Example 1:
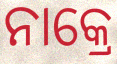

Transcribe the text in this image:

ନାକ୍ରେ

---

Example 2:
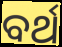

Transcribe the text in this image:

ବର୍ଥ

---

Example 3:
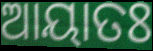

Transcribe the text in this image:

ଆୟାତଃ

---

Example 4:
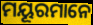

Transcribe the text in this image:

ମୟୂରମାନେ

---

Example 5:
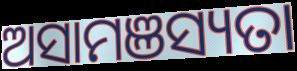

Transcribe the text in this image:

ଅସାମଞସ୍ୟତା